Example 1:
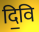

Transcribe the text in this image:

दि॒वि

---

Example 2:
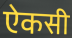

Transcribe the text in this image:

ऐकसी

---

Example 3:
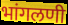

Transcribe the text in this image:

भांगलणी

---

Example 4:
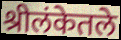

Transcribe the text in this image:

श्रीलंकेतले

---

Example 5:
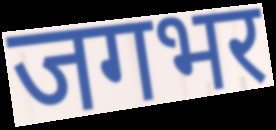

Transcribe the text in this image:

जगभर